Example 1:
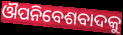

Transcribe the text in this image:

ଔପନିବେଶବାଦକୁ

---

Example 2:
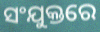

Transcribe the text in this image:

ସଂଯୁକ୍ତରେ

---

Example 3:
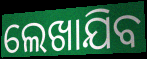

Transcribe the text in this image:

ଲେଖାଯିବ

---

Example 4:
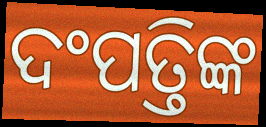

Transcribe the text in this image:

ଦଂପତ୍ତିଙ୍କ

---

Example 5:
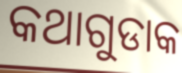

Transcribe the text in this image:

କଥାଗୁଡାକ